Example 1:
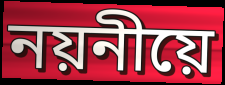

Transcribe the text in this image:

নয়নীয়ে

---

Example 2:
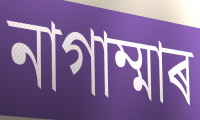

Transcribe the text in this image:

নাগাম্মাৰ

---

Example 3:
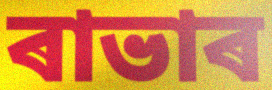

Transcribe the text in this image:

ৰাভাৰ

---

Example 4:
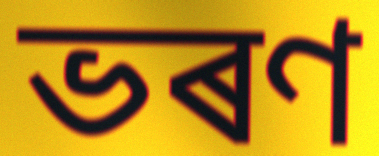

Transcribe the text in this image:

ভৰণ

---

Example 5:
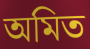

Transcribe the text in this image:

অমিত